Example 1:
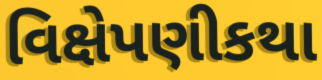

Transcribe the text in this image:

વિક્ષેપણીકથા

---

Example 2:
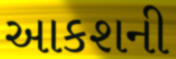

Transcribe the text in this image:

આકશની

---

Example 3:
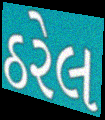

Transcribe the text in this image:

ઠરેલ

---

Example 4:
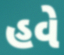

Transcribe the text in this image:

હવે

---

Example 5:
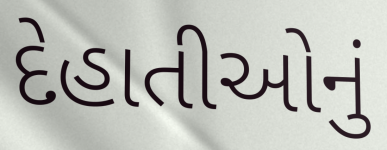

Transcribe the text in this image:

દેહાતીઓનું